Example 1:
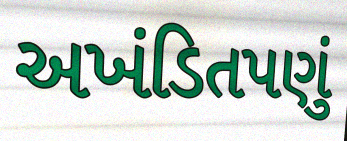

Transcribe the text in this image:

અખંડિતપણું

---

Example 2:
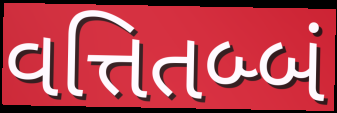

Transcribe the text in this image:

વત્તિતબ્બં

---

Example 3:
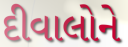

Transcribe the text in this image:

દીવાલોને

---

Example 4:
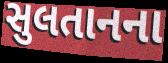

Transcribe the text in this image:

સુલતાનના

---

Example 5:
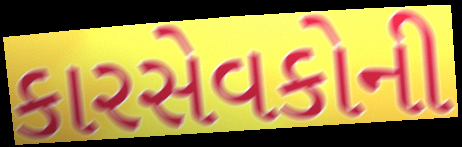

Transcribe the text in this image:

કારસેવકોની